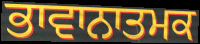
ਭਾਵਾਨਾਤਮਕ